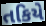
તકિયે